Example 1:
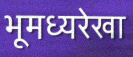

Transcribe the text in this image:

भूमध्यरेखा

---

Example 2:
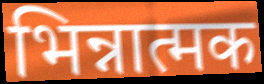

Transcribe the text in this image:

भिन्नात्मक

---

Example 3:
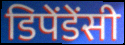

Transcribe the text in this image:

डिपेंडेंसी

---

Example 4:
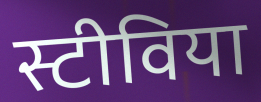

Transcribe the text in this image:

स्‍टीविया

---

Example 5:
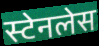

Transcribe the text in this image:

स्टेनलेस